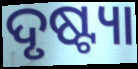
ଦୃଷ୍ଟ୍ୟା